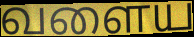
வளைய